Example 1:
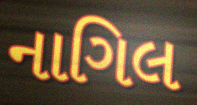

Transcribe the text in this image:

નાગિલ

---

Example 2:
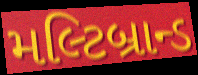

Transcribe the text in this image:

મલ્ટિબ્રાન્ડ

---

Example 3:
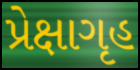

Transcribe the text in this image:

પ્રેક્ષાગૃહ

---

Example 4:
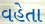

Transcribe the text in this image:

વહેતા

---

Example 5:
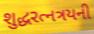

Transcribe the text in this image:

શુદ્ધરત્નત્રયની